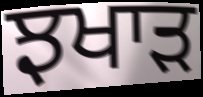
ਝਖਾੜ